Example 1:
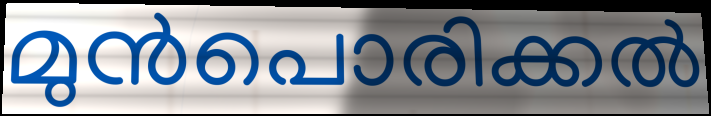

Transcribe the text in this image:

മുൻപൊരിക്കൽ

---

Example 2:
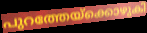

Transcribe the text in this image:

പുറത്തേയ്ക്കൊഴുകി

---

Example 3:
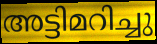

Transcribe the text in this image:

അട്ടിമറിച്ചു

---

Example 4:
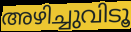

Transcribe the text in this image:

അഴിച്ചുവിടൂ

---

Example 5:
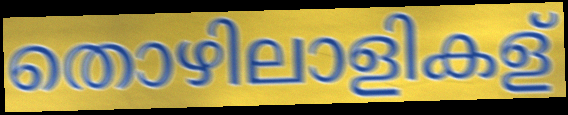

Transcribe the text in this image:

തൊഴിലാളികള്